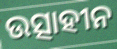
ଉତ୍ସାହୀନ